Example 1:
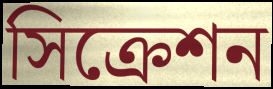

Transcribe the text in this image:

সিক্রেশন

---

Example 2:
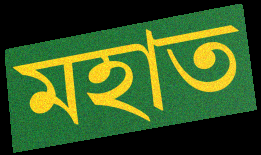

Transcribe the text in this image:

মহাত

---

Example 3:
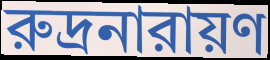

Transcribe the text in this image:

রুদ্রনারায়ণ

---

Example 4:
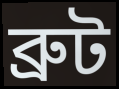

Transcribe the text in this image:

ব্রুট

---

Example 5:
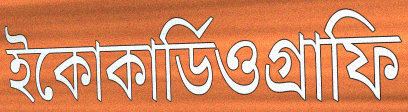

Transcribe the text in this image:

ইকোকার্ডিওগ্রাফি